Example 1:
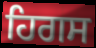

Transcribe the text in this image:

ਹਿਗਸ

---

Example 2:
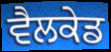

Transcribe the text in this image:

ਵੈਲਕੇਡ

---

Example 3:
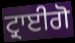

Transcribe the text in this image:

ਟ੍ਰਾਈਗੋ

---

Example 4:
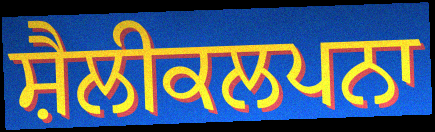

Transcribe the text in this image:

ਸ਼ੈਲੀਕਲਪਨਾ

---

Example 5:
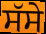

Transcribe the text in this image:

ਸੱਸੇ